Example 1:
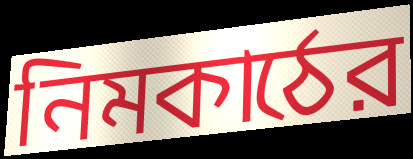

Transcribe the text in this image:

নিমকাঠের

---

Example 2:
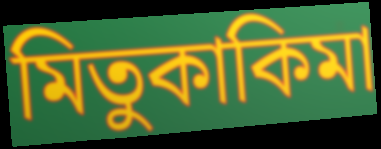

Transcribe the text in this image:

মিতুকাকিমা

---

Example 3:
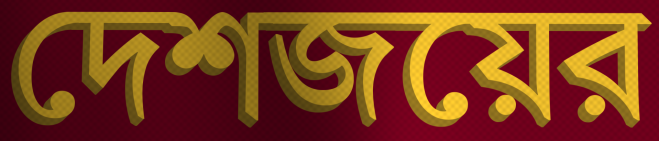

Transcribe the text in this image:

দেশজয়ের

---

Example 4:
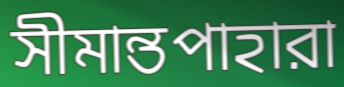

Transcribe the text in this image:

সীমান্তপাহারা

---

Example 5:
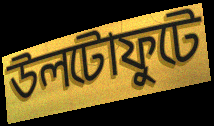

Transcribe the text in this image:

উলটোফুটে